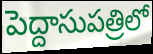
పెద్దాసుపత్రిలో